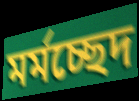
মর্মচ্ছেদ